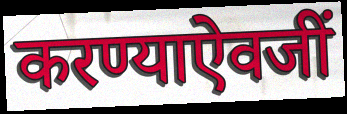
करण्याऐवजीं